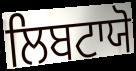
ਲਿਬਟਾਯੋ